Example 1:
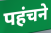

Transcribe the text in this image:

पहंचने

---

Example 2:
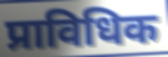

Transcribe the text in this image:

प्राविधिक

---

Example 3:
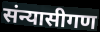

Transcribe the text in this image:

संन्यासीगण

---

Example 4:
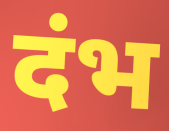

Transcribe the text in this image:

दंभ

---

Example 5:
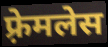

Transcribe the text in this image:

फ़्रेमलेस